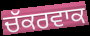
ਚੱਕਰਵਾਕ